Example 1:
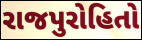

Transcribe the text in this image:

રાજપુરોહિતો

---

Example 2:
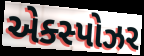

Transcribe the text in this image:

એક્સ્પોઝર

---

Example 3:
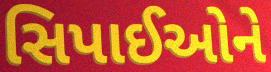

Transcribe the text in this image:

સિપાઈઓને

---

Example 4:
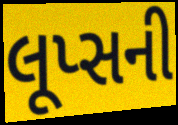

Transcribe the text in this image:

લૂપ્સની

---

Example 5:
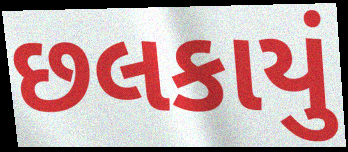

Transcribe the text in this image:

છલકાયું